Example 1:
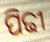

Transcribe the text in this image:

ପିଢୀ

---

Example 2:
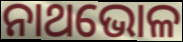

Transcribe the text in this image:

ନାଥଭୋଳ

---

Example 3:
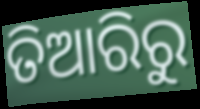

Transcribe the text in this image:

ତିଆରିରୁ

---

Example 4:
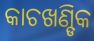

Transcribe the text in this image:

କାଚଖଣ୍ଡିକ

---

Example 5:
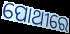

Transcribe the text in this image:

ପୋଥୀରେ